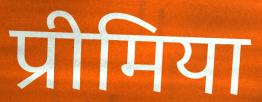
प्रीमिया